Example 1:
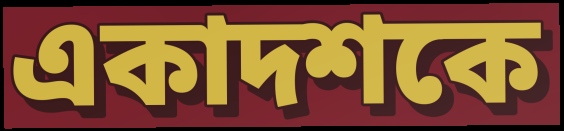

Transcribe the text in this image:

একাদশকে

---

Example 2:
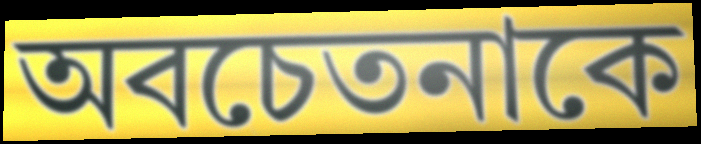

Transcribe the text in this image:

অবচেতনাকে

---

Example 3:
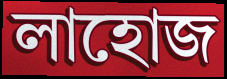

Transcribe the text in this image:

লাহোজ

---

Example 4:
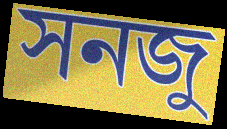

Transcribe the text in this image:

সনজু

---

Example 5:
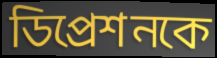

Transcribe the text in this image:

ডিপ্রেশনকে